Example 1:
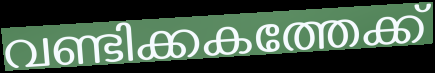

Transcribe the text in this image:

വണ്ടിക്കകത്തേക്ക്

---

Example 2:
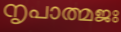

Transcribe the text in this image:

നൃപാത്മജഃ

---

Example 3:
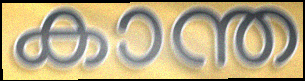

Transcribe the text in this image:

കാന്ത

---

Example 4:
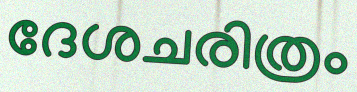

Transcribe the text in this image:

ദേശചരിത്രം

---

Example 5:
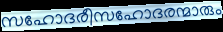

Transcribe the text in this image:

സഹോദരീസഹോദരന്മാരും